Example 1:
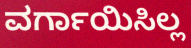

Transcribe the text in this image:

ವರ್ಗಾಯಿಸಿಲ್ಲ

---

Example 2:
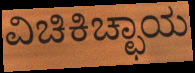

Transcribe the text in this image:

ವಿಚಿಕಿಚ್ಛಾಯ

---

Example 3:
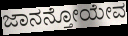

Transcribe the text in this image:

ಜಾನನ್ತೋಯೇವ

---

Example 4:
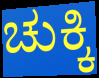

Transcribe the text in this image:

ಚುಕ್ಕಿ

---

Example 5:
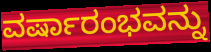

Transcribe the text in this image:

ವರ್ಷಾರಂಭವನ್ನು